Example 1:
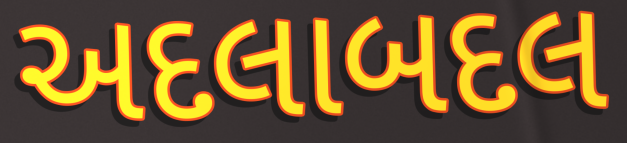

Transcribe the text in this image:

અદલાબદલ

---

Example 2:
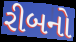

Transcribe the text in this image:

રીબનો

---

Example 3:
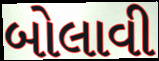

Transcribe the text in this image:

બોલાવી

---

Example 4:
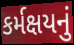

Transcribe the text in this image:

કર્મક્ષયનું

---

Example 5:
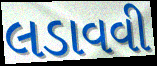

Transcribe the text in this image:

લડાવવી